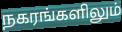
நகரங்களிலும்